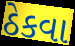
ઠેકવા